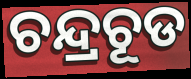
ଚନ୍ଦ୍ରଚୂଡ